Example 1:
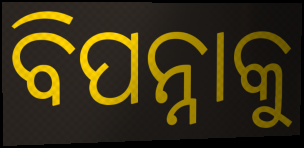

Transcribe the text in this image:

ବିପନ୍ନାକୁ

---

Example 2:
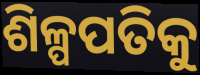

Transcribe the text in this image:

ଶିଳ୍ପପତିକୁ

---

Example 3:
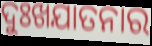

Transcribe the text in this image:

ଦୁଃଖଯାତନାର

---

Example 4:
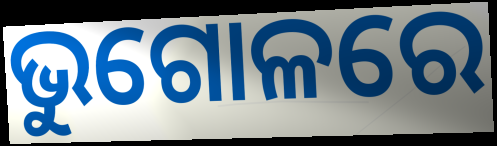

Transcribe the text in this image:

ଭୁଗୋଳରେ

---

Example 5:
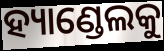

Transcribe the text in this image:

ହ୍ୟାଣ୍ଡେଲକୁ